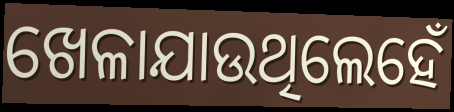
ଖେଳାଯାଉଥିଲେହେଁ